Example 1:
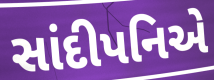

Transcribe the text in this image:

સાંદીપનિએ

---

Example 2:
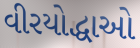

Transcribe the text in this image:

વીરયોદ્ધાઓ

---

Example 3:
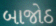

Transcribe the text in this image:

બાજોઠ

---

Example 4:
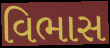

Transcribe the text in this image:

વિભાસ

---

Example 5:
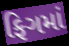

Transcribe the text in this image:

ફિગમાં